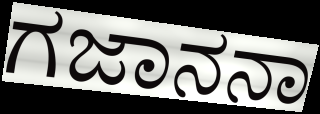
ಗಜಾನನಾ